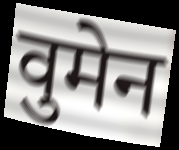
वुमेन